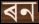
ৰন